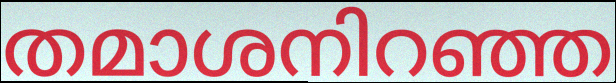
തമാശനിറഞ്ഞ